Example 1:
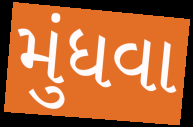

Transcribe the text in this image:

મુંધવા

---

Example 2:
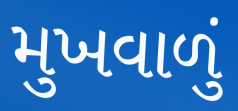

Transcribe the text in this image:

મુખવાળું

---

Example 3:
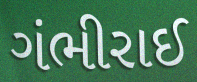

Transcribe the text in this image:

ગંભીરાઈ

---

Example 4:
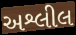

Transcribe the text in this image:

અશ્લીલ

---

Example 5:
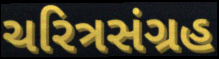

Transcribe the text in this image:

ચરિત્રસંગ્રહ